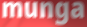
munga